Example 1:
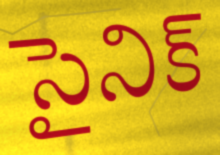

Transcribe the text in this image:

సైనిక్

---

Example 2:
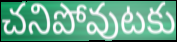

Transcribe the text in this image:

చనిపోవుటకు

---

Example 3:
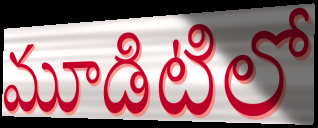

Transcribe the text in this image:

మూడిటిలో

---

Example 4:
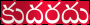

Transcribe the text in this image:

కుదరదు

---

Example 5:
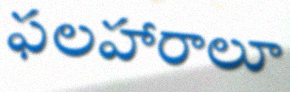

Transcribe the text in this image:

ఫలహారాలూ